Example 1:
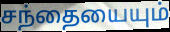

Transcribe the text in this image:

சந்தையையும்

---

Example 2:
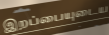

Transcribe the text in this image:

இறப்பையுடைய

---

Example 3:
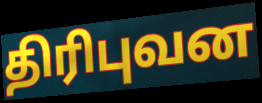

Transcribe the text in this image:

திரிபுவன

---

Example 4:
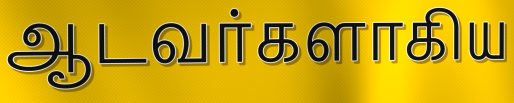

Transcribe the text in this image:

ஆடவர்களாகிய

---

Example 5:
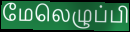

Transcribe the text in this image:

மேலெழுப்பி